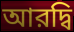
আরদ্বি